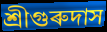
শ্ৰীগুৰুদাস